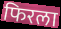
फिरला